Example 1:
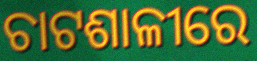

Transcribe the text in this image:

ଚାଟଶାଳୀରେ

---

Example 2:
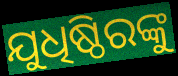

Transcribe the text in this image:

ଯୁଧିଷ୍ଠିରଙ୍କୁ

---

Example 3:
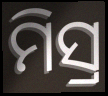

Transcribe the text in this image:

ମିସ୍ର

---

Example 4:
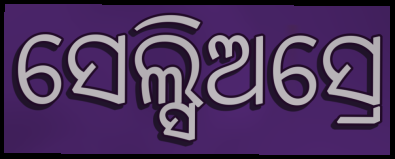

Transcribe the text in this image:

ସେଲ୍ସିଅସ୍ରେ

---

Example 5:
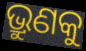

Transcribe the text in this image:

ଭ୍ରୁଣକୁ